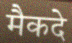
मैकदे